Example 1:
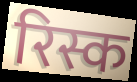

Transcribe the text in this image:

रिस्क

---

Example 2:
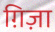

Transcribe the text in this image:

ग़िज़ा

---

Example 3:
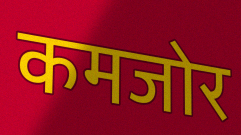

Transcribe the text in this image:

कमजोर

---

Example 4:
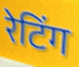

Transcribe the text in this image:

रेटिंग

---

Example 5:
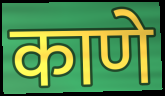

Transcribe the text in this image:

काणे